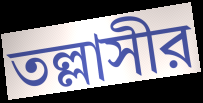
তল্লাসীর